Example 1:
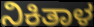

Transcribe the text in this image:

ನಿಕಿತಾಳ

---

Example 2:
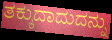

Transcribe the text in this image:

ತಕ್ಕುದಾದುದನ್ನು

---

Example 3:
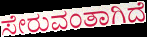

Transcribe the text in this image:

ಸೇರುವಂತಾಗಿದೆ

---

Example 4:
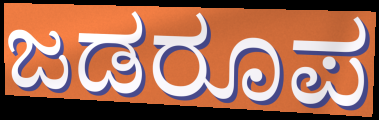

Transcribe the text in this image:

ಜಡರೂಪ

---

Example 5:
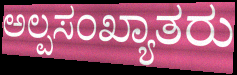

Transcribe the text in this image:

ಅಲ್ಪಸಂಖ್ಯಾತರು